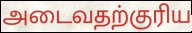
அடைவதற்குரிய